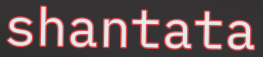
shantata